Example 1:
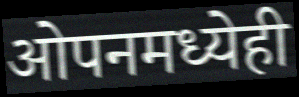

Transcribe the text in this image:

ओपनमध्येही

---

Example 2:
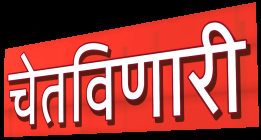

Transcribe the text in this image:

चेतविणारी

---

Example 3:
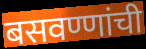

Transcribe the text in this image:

बसवण्णांची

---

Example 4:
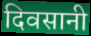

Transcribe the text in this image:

दिवसानी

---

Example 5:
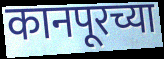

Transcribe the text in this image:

कानपूरच्या